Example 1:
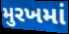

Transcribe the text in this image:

મુરખમાં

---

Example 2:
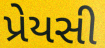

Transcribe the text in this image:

પ્રેયસી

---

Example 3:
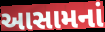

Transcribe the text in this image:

આસામનાં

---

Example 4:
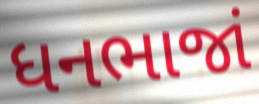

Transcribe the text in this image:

ધનભાજાં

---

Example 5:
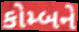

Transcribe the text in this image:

કોમ્બને